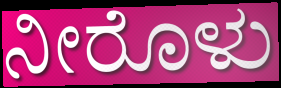
ನೀರೊಳು